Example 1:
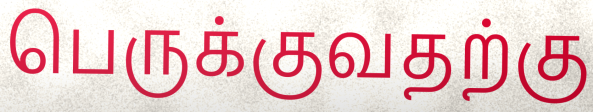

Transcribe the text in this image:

பெருக்குவதற்கு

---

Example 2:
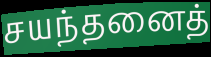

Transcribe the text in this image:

சயந்தனைத்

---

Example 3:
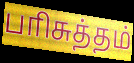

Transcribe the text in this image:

பரிசுத்தம்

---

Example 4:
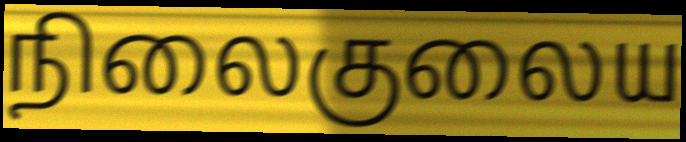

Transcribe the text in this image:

நிலைகுலைய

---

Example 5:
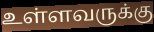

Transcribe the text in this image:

உள்ளவருக்கு